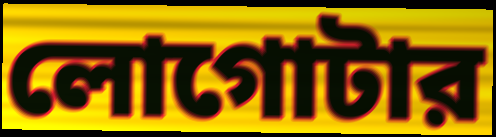
লোগোটার